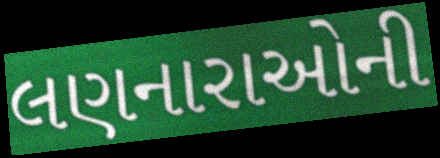
લણનારાઓની